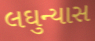
લઘુન્યાસ